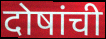
दोषांची